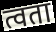
त्वता